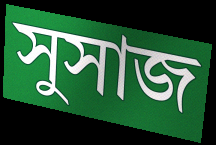
সুসাজ